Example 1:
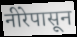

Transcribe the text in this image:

नीरेपासून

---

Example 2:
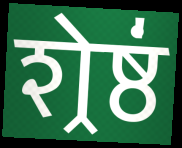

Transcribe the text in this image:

श्रेष्ठं॑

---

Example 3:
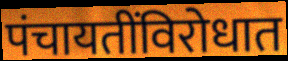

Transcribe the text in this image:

पंचायतींविरोधात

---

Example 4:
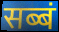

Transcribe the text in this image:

सब्बं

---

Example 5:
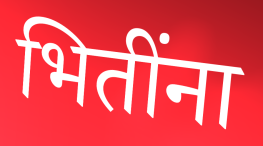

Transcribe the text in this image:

भितींना